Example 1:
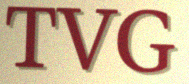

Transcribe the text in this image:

TVG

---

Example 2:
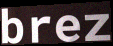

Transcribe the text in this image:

brez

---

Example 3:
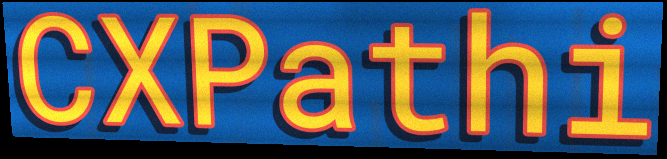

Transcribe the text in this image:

CXPathi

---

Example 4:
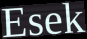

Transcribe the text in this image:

Esek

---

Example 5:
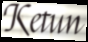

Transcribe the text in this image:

Ketun